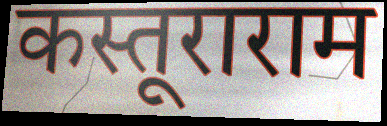
कस्तूराराम